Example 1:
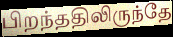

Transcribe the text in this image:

பிறந்ததிலிருந்தே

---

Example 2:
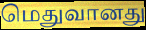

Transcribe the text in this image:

மெதுவானது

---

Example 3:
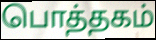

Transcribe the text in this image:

பொத்தகம்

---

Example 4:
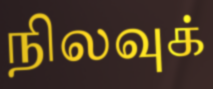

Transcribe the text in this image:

நிலவுக்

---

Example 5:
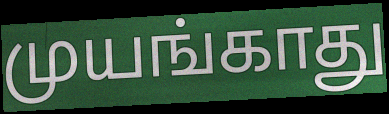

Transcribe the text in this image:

முயங்காது